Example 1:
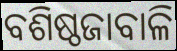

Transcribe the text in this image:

ବଶିଷ୍ଠଜାବାଳି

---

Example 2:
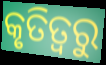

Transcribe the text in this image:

କୃତିତ୍ଵରୁ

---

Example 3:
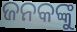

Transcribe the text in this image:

ଜନକଙ୍କୁ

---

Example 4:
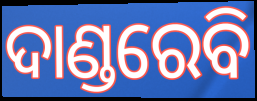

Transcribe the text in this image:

ଦାଣ୍ଡରେବି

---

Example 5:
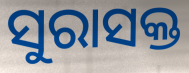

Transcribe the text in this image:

ସୁରାସକ୍ତ